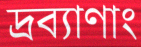
দ্রব্যাণাং